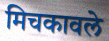
मिचकावले